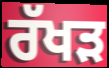
ਰੱਖੜ